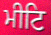
ਮੀਟਿ